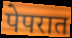
पेपरात